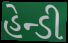
હેન્ડી